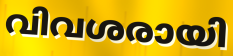
വിവശരായി